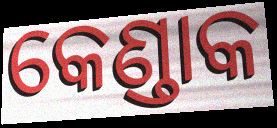
କେଣ୍ଡାକ